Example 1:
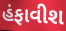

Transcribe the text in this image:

હંફાવીશ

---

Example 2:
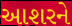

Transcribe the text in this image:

આશરને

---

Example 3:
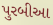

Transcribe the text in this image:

પુરબીઆ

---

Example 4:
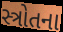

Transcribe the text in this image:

સ્ત્રોતના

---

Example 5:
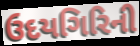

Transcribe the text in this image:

ઉદયગિરિની